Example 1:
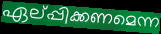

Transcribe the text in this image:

ഏല്പ്പിക്കണമെന്ന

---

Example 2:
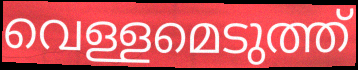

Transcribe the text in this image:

വെള്ളമെടുത്ത്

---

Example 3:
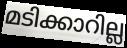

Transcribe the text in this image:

മടിക്കാറില്ല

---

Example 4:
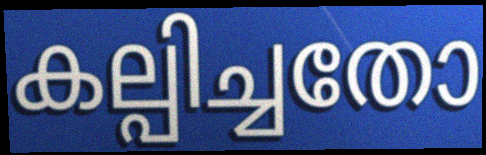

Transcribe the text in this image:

കല്പിച്ചതോ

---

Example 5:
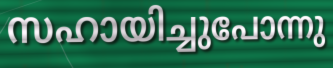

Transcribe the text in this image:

സഹായിച്ചുപോന്നു